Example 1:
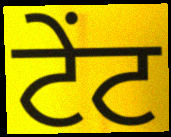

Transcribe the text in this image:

ਟੇਂਟ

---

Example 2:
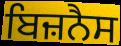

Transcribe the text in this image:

ਬਿਜ਼ਨੈਸ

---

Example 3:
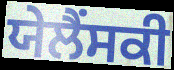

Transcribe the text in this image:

ਯੇਲੈਂਸਕੀ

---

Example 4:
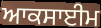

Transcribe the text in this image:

ਆਕਸਾਈਮ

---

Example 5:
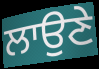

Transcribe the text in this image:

ਲਾਉਣੇ